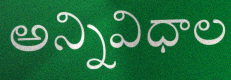
అన్నివిధాల